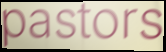
pastors